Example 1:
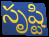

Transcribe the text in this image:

సృష్టి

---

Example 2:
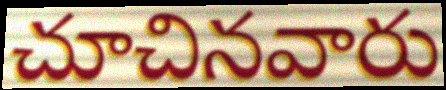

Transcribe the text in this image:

చూచినవారు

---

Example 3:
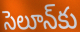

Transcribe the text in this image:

సెలూన్‌కు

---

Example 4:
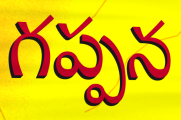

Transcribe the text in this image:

గప్పన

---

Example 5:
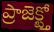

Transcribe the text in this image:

ప్రాజెక్ట్తో